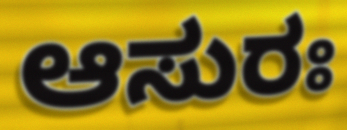
ಆಸುರಃ